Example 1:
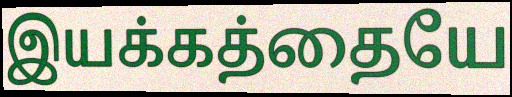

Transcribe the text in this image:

இயக்கத்தையே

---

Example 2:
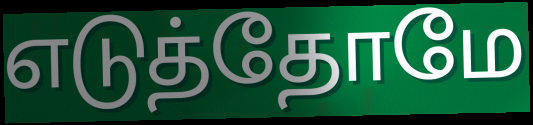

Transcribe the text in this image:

எடுத்தோமே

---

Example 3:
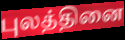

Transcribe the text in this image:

புலத்தினை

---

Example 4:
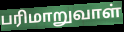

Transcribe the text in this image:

பரிமாறுவாள்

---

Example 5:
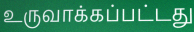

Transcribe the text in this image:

உருவாக்கப்பட்டது